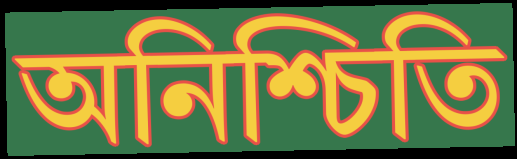
অনিশ্চিতি